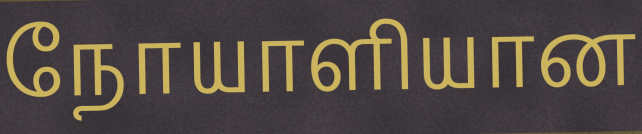
நோயாளியான